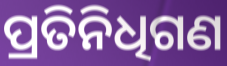
ପ୍ରତିନିଧିଗଣ